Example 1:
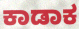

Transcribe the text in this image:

ಕಾಡಾಕ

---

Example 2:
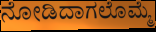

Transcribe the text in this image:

ನೋಡಿದಾಗಲೊಮ್ಮೆ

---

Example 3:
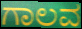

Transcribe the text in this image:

ಗಾಲವ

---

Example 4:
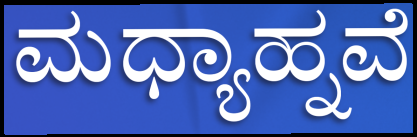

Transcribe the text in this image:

ಮಧ್ಯಾಹ್ನವೆ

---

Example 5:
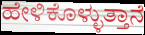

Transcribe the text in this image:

ಹೇಳಿಕೊಳ್ಳುತ್ತಾನೆ